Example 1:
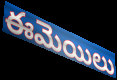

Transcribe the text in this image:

ఈమెయిలు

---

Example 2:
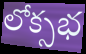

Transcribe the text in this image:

లోక్సభ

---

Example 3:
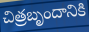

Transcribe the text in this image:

చిత్రబృందానికి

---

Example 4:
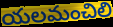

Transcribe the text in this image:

యలమంచిలి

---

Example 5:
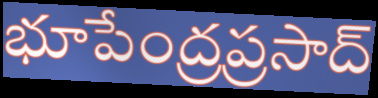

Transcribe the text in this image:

భూపేంద్రప్రసాద్